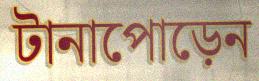
টানাপোড়েন